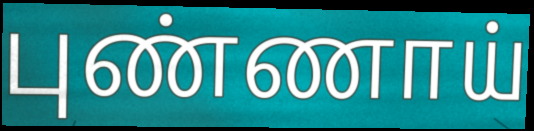
புண்ணாய்